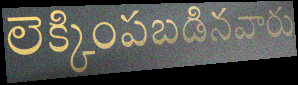
లెక్కింపబడినవారు